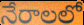
నేరాలలో